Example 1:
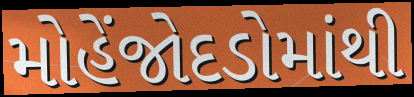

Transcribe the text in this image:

મોહેંજોદડોમાંથી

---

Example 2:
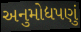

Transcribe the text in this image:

અનુમોદ્યપણું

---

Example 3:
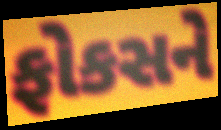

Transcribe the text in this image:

ફોકસને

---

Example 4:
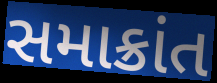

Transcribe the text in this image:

સમાક્રાંત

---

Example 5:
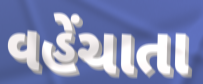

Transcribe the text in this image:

વહેંચાતા